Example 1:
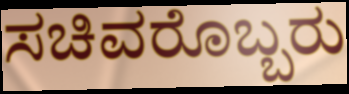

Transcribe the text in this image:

ಸಚಿವರೊಬ್ಬರು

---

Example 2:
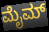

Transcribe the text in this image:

ಮೈಮ್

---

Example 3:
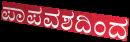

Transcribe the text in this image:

ಪಾಪವಶದಿಂದ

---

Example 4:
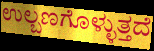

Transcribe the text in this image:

ಉಲ್ಬಣಗೊಳ್ಳುತ್ತದೆ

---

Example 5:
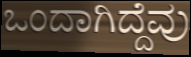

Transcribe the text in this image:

ಒಂದಾಗಿದ್ದೆವು